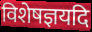
विशेषज्ञयदि